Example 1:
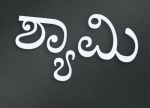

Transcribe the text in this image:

ಶ್ಯಾಮಿ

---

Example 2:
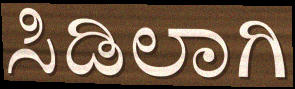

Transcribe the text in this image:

ಸಿಡಿಲಾಗಿ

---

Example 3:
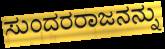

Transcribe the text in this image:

ಸುಂದರರಾಜನನ್ನು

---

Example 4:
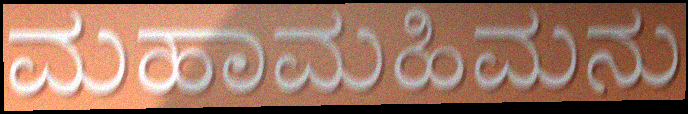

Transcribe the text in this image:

ಮಹಾಮಹಿಮನು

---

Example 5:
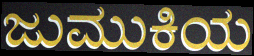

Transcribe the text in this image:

ಜುಮುಕಿಯ